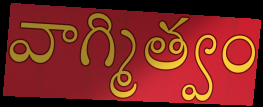
వాగ్మిత్వం